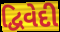
દ્વિવેદી